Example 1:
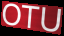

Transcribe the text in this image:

OTU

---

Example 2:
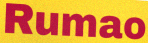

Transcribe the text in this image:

Rumao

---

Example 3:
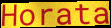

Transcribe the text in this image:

Horata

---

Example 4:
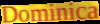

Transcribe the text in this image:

Dominica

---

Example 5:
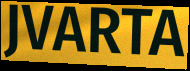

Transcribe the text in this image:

JVARTA